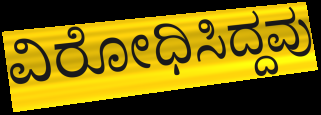
ವಿರೋಧಿಸಿದ್ದವು